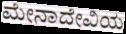
ಮೇನಾದೇವಿಯ